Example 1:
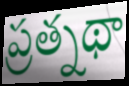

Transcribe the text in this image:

ప్రత్నథా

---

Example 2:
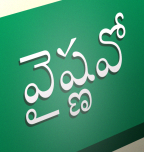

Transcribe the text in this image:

వైష్ణవో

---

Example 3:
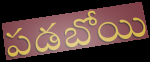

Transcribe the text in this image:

పడబోయి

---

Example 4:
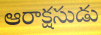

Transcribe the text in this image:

ఆరాక్షసుడు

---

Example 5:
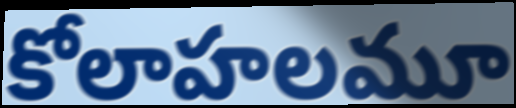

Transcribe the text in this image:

కోలాహలమూ